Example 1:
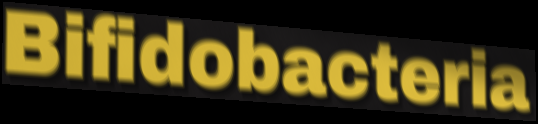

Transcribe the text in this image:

Bifidobacteria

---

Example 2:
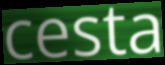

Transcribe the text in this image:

cesta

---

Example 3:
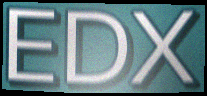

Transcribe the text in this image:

EDX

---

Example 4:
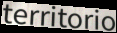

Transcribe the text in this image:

territorio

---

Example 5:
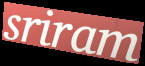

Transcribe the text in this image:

sriram